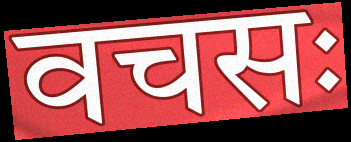
वचसः